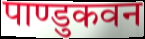
पाण्डुकवन